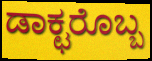
ಡಾಕ್ಟರೊಬ್ಬ